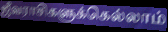
ஜீவராசிகளுக்கெல்லாம்